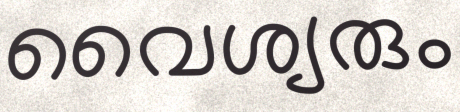
വൈശ്യരും